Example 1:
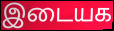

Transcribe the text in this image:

இடையக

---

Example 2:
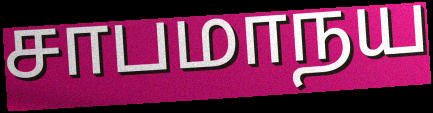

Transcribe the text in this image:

சாபமாநய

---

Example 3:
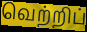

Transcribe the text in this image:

வெற்றிப்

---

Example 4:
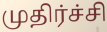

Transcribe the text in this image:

முதிர்ச்சி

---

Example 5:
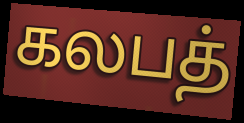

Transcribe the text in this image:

கலபத்